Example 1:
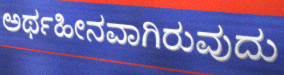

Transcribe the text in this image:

ಅರ್ಥಹೀನವಾಗಿರುವುದು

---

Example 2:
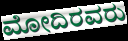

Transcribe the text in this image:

ಮೋದಿರವರು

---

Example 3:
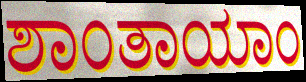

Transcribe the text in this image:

ಶಾಂತಾಯಾಂ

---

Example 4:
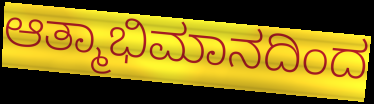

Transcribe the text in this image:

ಆತ್ಮಾಭಿಮಾನದಿಂದ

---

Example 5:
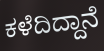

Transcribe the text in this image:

ಕಳೆದಿದ್ದಾನೆ